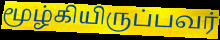
மூழ்கியிருப்பவர்